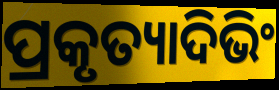
ପ୍ରକୃତ୍ୟାଦିଭିଂ